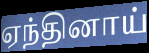
ஏந்தினாய்